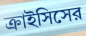
ক্রাইসিসের